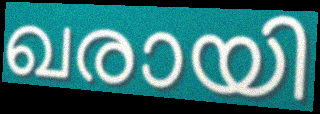
ഖരായി